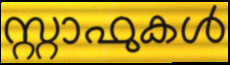
സ്റ്റാഫുകൾ